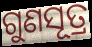
ଗୁଣସୂତ୍ର